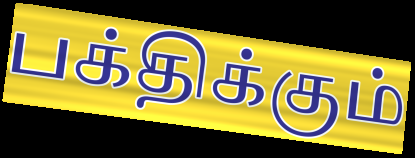
பக்திக்கும்